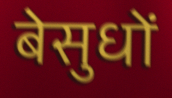
बेसुधों